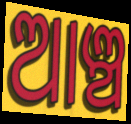
ଆଞ୍ଚ